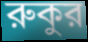
রুকুর